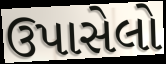
ઉપાસેલો